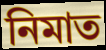
নিমাত